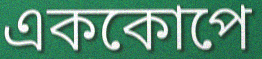
এককোপে